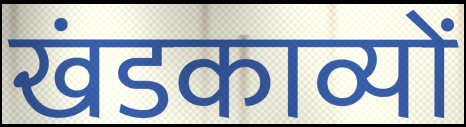
खंडकाव्यों